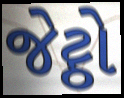
જેટ્ઠો